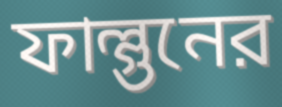
ফাল্গুনের